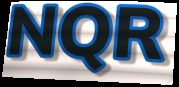
NQR